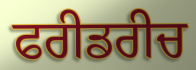
ਫਰੀਡਰੀਚ